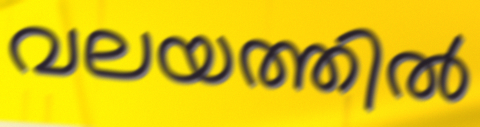
വലയത്തിൽ